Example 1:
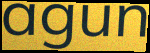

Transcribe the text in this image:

agun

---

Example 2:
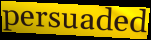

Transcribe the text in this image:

persuaded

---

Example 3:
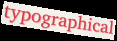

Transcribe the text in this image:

typographical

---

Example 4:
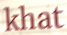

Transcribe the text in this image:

khat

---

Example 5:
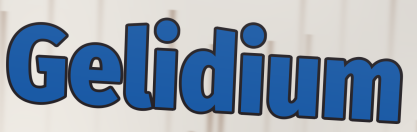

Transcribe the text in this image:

Gelidium